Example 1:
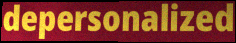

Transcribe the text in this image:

depersonalized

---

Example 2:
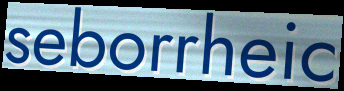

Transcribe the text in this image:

seborrheic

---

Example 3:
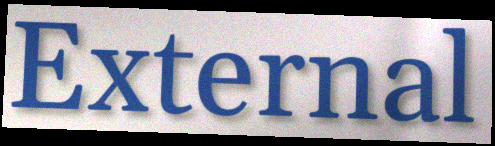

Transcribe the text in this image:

External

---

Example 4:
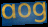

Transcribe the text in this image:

aog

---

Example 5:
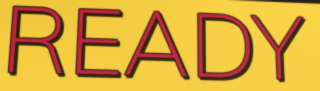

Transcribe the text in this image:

READY